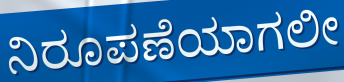
ನಿರೂಪಣೆಯಾಗಲೀ